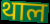
थाल